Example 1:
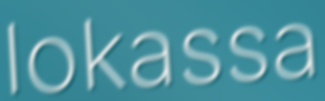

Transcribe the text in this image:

lokassa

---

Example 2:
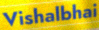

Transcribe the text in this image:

Vishalbhai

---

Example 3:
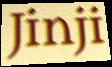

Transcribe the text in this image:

Jinji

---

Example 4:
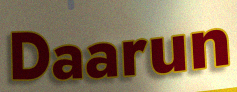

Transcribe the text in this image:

Daarun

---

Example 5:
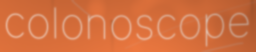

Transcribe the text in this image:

colonoscope